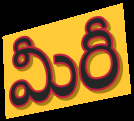
మీరీ